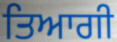
ਤਿਆਗੀ